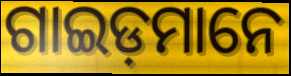
ଗାଇଡ଼ମାନେ